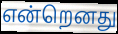
என்றெனது